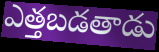
ఎత్తబడతాడు